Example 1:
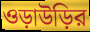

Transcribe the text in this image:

ওড়াউড়ির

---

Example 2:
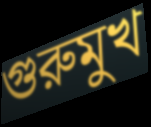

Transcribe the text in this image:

গুরুমুখ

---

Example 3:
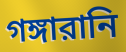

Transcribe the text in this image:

গঙ্গারানি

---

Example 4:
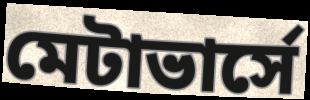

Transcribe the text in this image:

মেটাভার্সে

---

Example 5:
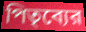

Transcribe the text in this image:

পিতৃব্যের